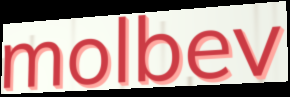
molbev